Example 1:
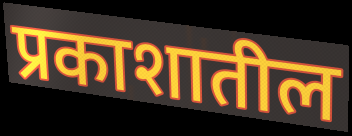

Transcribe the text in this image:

प्रकाशातील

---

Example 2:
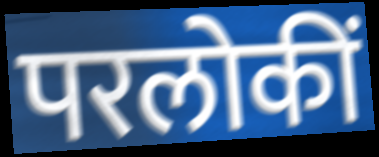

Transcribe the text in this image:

परलोकीं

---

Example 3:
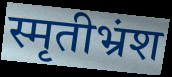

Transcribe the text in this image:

स्मृतीभ्रंश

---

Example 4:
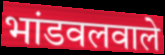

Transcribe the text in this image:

भांडवलवाले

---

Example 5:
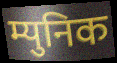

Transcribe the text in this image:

म्युनिक